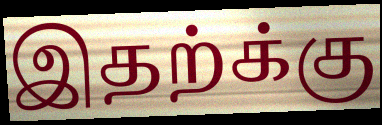
இதற்க்கு